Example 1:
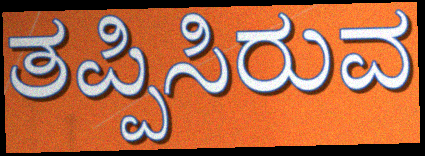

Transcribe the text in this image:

ತಪ್ಪಿಸಿರುವ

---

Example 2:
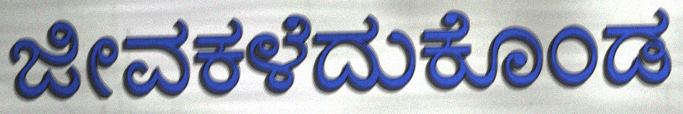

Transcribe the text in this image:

ಜೀವಕಳೆದುಕೊಂಡ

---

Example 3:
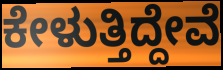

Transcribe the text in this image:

ಕೇಳುತ್ತಿದ್ದೇವೆ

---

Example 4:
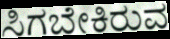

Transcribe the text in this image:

ಸಿಗಬೇಕಿರುವ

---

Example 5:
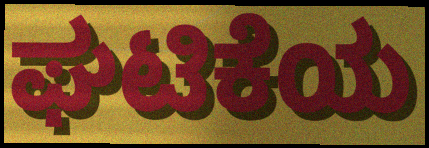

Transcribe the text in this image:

ಘಟಿಕೆಯ